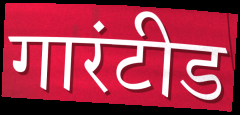
गारंटीड